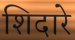
शिदारे